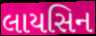
લાયસિન